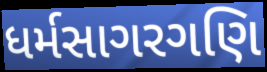
ધર્મસાગરગણિ